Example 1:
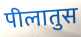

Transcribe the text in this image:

पीलातुस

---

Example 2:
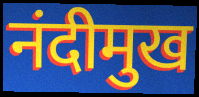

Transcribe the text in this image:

नंदीमुख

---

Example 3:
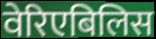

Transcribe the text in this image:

वेरिएबिलिस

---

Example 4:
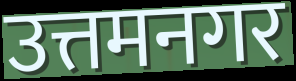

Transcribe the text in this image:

उत्तमनगर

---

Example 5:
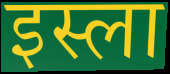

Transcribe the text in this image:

इस्ला